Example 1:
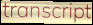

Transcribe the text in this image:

transcript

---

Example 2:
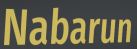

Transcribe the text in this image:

Nabarun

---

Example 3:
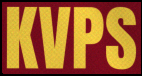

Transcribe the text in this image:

KVPS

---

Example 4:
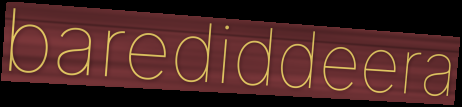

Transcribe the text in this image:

barediddeera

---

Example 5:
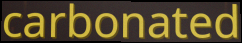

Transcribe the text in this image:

carbonated